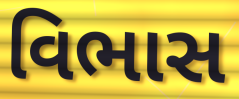
વિભાસ